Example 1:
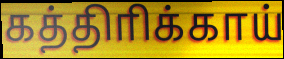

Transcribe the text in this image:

கத்திரிக்காய்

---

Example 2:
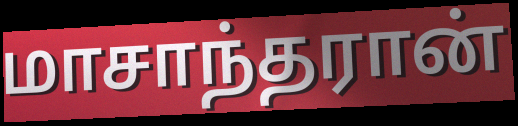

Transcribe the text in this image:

மாசாந்தரான்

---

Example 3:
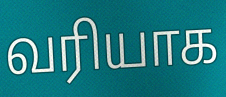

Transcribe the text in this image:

வரியாக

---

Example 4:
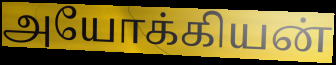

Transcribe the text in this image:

அயோக்கியன்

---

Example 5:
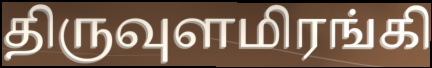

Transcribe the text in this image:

திருவுளமிரங்கி